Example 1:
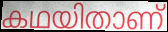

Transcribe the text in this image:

കഥയിതാണ്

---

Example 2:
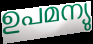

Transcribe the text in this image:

ഉപമന്യു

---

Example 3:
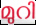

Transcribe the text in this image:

മുറി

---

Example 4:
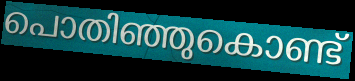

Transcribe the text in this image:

പൊതിഞ്ഞുകൊണ്ട്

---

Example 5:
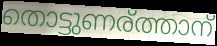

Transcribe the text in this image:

തൊട്ടുണര്ത്താന്